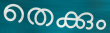
തെക്കും